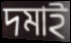
দমাই